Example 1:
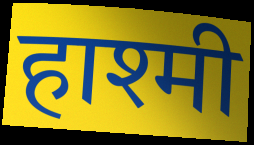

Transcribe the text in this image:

हाश्मी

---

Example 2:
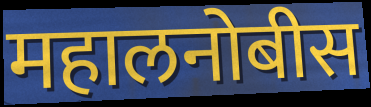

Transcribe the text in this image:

महालनोबीस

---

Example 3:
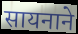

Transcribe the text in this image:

सायनाने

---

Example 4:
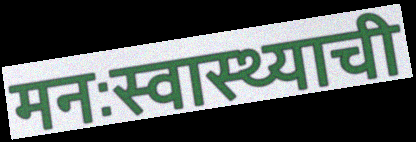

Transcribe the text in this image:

मनःस्वास्थ्याची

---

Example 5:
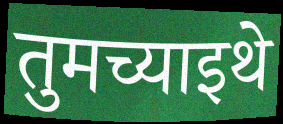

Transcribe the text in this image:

तुमच्याइथे